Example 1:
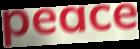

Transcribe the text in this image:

peace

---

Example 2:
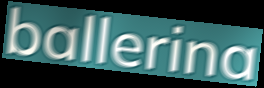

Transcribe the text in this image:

ballerina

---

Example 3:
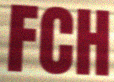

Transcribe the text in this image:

FCH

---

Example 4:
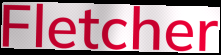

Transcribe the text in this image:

Fletcher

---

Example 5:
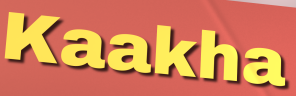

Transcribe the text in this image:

Kaakha